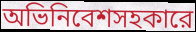
অভিনিবেশসহকারে